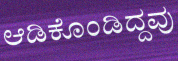
ಆಡಿಕೊಂಡಿದ್ದವು